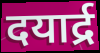
दयार्द्र